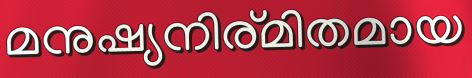
മനുഷ്യനിര്മിതമായ